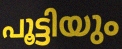
പൂട്ടിയും